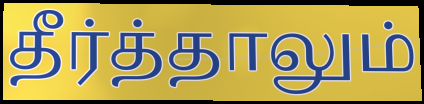
தீர்த்தாலும்